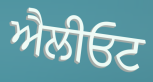
ਐਲੀਓਟ